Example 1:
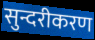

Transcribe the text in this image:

सुन्दरीकरण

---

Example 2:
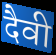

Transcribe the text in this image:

दैवी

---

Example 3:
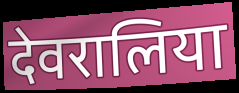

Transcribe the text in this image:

देवरालिया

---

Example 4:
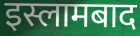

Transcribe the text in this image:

इस्लामबाद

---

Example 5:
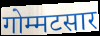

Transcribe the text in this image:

गोम्मटसार